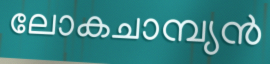
ലോകചാമ്പ്യൻ